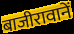
बाजीरावानें